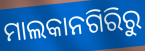
ମାଲକାନଗିରିରୁ